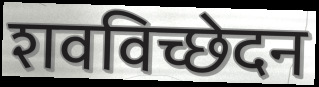
शवविच्छेदन